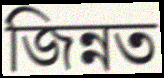
জিন্নত